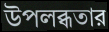
উপলব্ধতার